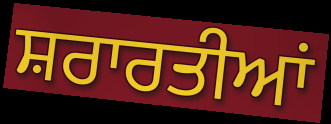
ਸ਼ਰਾਰਤੀਆਂ